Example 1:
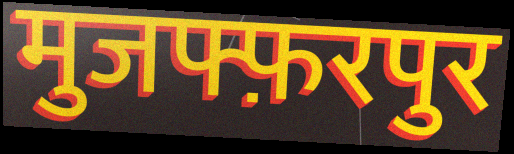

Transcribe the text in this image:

मुजफ्फ़रपुर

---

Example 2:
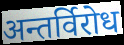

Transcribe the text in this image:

अन्तर्विरोध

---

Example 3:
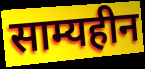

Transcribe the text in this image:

साम्यहीन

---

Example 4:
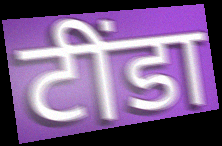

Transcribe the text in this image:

टींडा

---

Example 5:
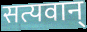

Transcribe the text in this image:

सत्यवान्